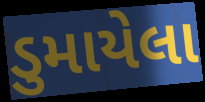
ડુમાયેલા